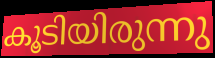
കൂടിയിരുന്നു